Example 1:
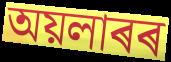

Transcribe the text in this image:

অয়লাৰৰ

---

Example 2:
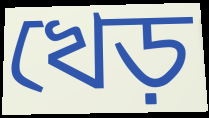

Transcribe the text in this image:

খেড়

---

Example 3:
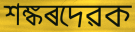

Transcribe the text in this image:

শঙ্কৰদেৱক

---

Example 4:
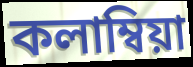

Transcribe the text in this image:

কলাম্বিয়া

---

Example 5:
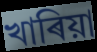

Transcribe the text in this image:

খাৰিয়া